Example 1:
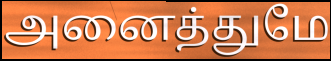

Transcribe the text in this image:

அனைத்துமே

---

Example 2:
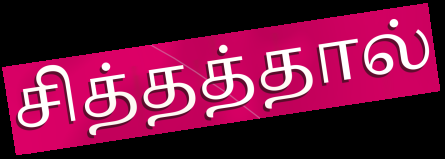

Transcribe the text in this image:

சித்தத்தால்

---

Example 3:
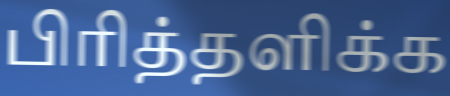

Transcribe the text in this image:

பிரித்தளிக்க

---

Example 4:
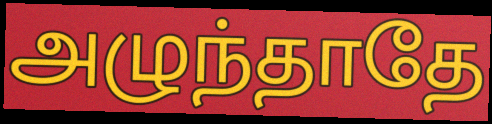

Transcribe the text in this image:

அழுந்தாதே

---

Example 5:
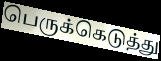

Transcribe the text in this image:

பெருக்கெடுத்து